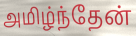
அமிழ்ந்தேன்